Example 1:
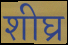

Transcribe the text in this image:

शीघ्र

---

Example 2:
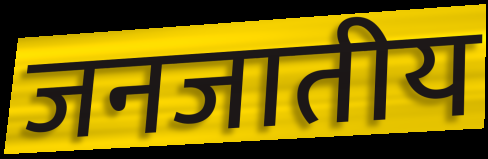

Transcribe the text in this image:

जनजातीय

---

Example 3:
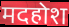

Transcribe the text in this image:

मदहोश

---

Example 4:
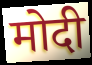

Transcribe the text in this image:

मोदी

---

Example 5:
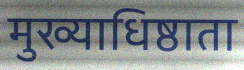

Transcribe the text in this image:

मुख्याधिष्ठाता